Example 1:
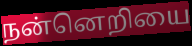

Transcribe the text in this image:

நன்னெறியை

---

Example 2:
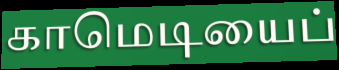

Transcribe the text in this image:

காமெடியைப்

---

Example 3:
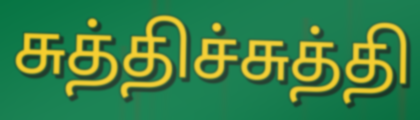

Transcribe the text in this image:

சுத்திச்சுத்தி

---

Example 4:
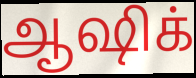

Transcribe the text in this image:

ஆஷிக்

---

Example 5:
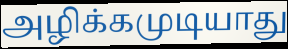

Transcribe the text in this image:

அழிக்கமுடியாது